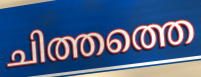
ചിത്തത്തെ